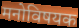
मनोविषयक